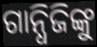
ଗାନ୍ଧିଜିଙ୍କୁ